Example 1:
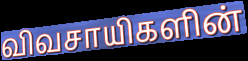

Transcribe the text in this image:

விவசாயிகளின்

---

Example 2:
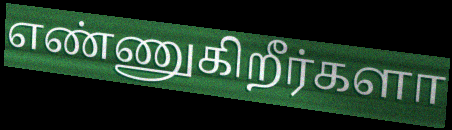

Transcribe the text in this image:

எண்ணுகிறீர்களா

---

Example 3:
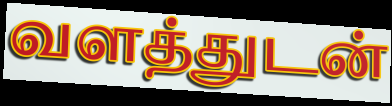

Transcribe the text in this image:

வளத்துடன்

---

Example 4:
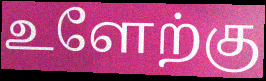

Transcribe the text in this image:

உளேற்கு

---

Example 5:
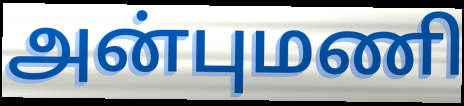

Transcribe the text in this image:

அன்புமணி